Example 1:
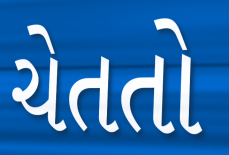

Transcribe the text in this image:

ચેતતો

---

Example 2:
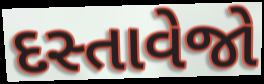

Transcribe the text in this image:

દસ્તાવેજો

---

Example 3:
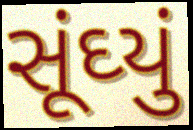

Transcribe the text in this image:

સૂંઘ્યું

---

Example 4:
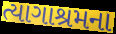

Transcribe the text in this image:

ત્યાગાશ્રમના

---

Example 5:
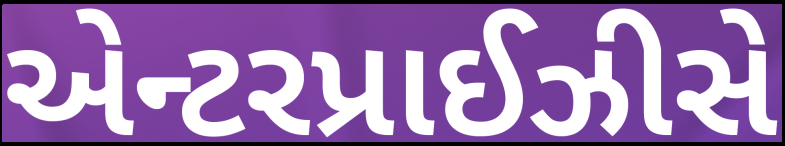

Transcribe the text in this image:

એન્ટરપ્રાઈઝીસે